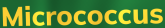
Micrococcus